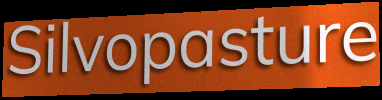
Silvopasture